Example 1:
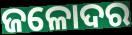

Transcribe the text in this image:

ଜଳୋଦର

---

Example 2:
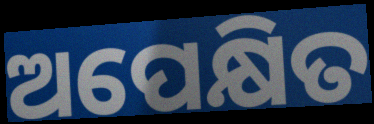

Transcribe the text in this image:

ଅପେକ୍ଷିତ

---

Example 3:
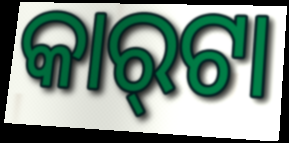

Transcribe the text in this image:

କାର୍‍ଟା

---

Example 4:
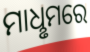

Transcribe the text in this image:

ମାଧୢମରେ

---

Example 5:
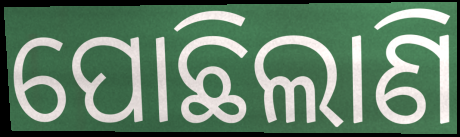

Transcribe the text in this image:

ପୋଛିଲାଣି